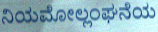
ನಿಯಮೋಲ್ಲಂಘನೆಯ